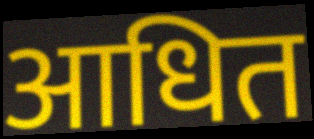
आधित